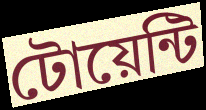
টোয়েন্টি